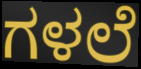
ಗಳಲೆ